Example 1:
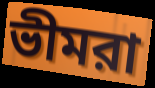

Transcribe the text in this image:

ভীমরা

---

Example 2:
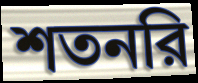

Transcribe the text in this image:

শতনরি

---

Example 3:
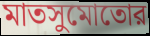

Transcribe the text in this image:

মাতসুমোতোর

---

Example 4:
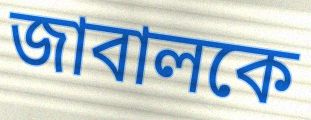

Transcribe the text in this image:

জাবালকে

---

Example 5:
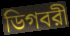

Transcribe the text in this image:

ডিগবরী